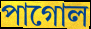
পাগোল